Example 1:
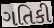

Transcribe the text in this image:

ગતિકી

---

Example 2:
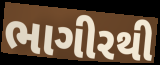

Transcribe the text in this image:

ભાગીરથી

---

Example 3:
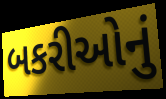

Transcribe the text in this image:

બકરીઓનું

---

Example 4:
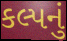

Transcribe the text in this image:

કલ્પનું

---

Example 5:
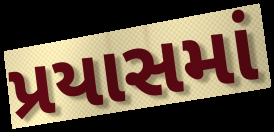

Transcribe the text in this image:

પ્રયાસમાં